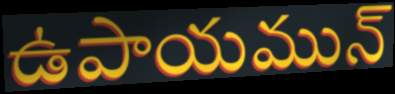
ఉపాయమున్